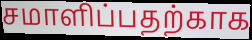
சமாளிப்பதற்காக